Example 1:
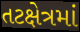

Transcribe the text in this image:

તટક્ષેત્રમાં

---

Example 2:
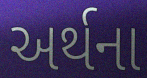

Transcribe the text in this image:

અર્થના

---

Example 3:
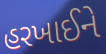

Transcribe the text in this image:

હરખાઈને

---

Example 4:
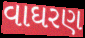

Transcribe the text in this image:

વાઘરણ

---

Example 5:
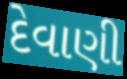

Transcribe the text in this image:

દેવાણી